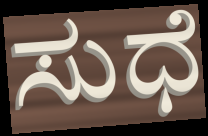
ಸುಧೆ